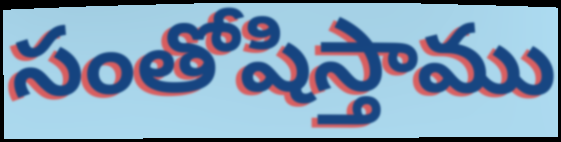
సంతోషిస్తాము